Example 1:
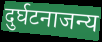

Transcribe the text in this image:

दुर्घटनाजन्य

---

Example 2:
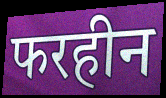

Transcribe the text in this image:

फरहीन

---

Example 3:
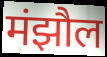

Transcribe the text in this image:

मंझौल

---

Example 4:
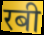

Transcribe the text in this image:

रबी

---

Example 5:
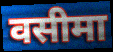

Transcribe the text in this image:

वसीमा